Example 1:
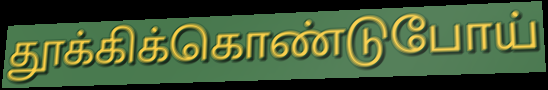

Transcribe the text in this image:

தூக்கிக்கொண்டுபோய்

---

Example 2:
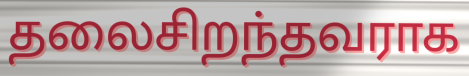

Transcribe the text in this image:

தலைசிறந்தவராக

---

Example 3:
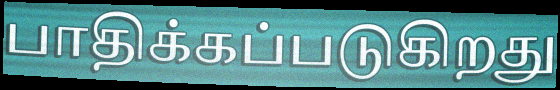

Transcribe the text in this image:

பாதிக்கப்படுகிறது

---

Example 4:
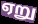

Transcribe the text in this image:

ஏறு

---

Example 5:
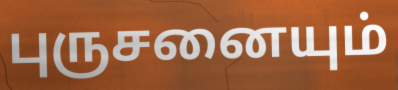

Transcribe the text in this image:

புருசனையும்